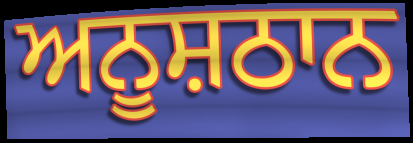
ਅਨੂਸ਼ਠਾਨ